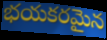
భయకరమైన